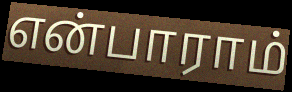
என்பாராம்